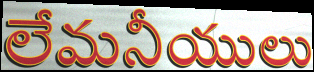
లేమనీయులు